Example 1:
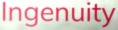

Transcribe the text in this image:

Ingenuity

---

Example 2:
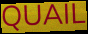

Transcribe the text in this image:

QUAIL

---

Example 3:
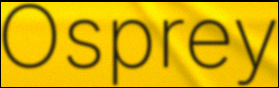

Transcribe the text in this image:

Osprey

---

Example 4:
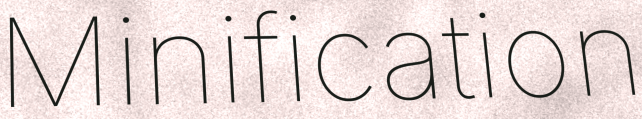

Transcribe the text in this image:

Minification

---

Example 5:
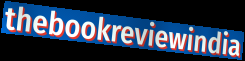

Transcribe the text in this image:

thebookreviewindia